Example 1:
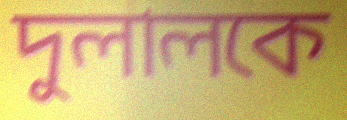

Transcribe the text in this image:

দুলালকে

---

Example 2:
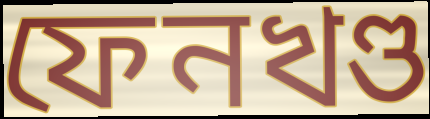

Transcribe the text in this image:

ফেনখণ্ড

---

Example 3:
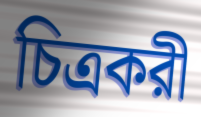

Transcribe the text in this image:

চিত্রকরী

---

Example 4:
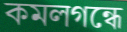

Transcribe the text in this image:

কমলগন্ধে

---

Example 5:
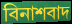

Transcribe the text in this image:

বিনাশবাদ